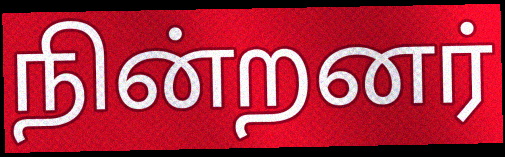
நின்றனர்